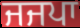
ਜਜਪਾ